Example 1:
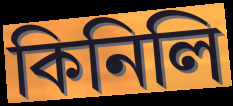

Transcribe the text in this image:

কিনিলি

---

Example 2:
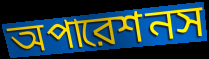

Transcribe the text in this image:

অপারেশনস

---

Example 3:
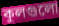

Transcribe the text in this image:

কুলগুলো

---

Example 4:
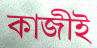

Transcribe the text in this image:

কাজীই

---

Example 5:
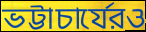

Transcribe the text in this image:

ভট্টাচার্যেরও